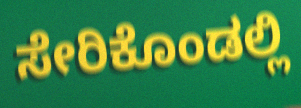
ಸೇರಿಕೊಂಡಲ್ಲಿ